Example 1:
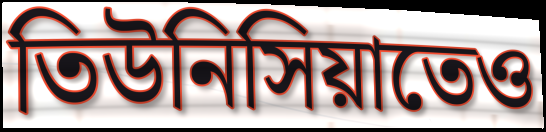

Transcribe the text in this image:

তিউনিসিয়াতেও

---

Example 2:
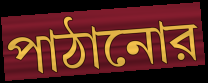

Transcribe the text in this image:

পাঠানোর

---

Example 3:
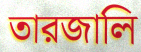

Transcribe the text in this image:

তারজালি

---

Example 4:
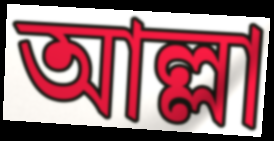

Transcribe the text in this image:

আল্লা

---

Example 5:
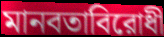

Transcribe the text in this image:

মানবতাবিরোধী